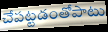
చేపట్టడంతోపాటు